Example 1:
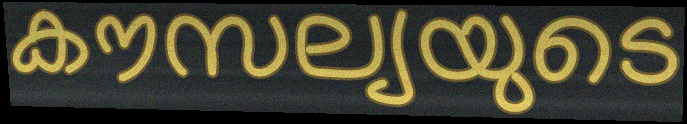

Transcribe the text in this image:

കൗസല്യയുടെ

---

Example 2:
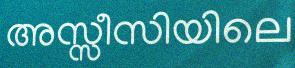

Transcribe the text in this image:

അസ്സീസിയിലെ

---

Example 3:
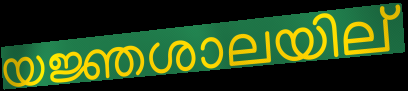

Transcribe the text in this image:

യജ്ഞശാലയില്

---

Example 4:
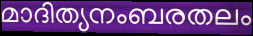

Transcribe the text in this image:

മാദിത്യനംബരതലം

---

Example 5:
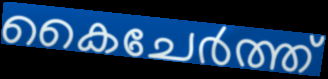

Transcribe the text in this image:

കൈചേർത്ത്